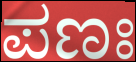
ಪಣಃ